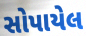
સોપાયેલ